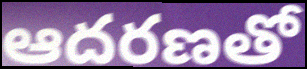
ఆదరణతో